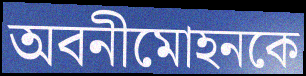
অবনীমোহনকে